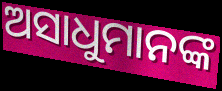
ଅସାଧୁମାନଙ୍କ